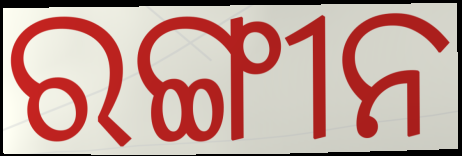
ରଙ୍ଗୀନ